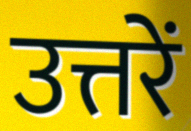
उत्तरें